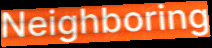
Neighboring